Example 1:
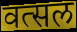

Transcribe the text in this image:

वत्सल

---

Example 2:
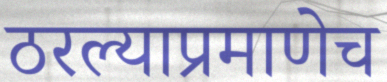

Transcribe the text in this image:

ठरल्याप्रमाणेच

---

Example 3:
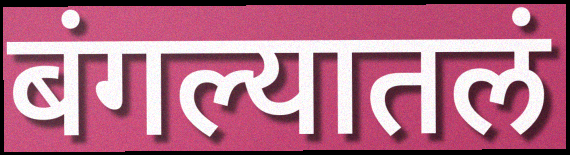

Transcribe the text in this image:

बंगल्यातलं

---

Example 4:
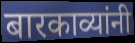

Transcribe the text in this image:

बारकाव्यांनी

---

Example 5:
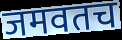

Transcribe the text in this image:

जमवतच